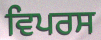
ਵਿਪਰਸ